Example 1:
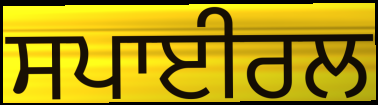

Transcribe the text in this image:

ਸਪਾਈਰਲ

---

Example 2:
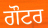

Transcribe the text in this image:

ਗੌਟਰ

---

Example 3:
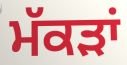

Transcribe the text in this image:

ਮੱਕੜਾਂ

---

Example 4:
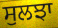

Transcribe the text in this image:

ਸੁਲਝਾ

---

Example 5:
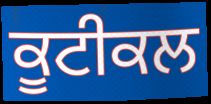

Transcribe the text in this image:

ਕੂਟੀਕਲ